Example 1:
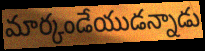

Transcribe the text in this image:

మార్కండేయుడన్నాడు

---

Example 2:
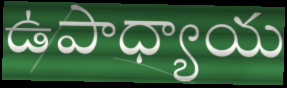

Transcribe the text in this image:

ఉపాధ్యాయ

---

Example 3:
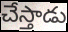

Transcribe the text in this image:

చేస్తాడు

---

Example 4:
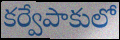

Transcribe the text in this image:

కర్వేపాకులో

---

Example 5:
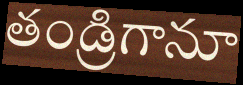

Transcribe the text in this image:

తండ్రిగానూ